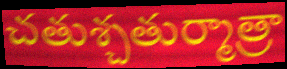
చతుశ్చతుర్మాత్రా